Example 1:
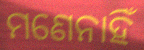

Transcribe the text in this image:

ମଣେନାହିଁ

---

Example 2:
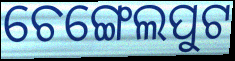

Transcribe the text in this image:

ଚେଙ୍ଗେଲପୁଟ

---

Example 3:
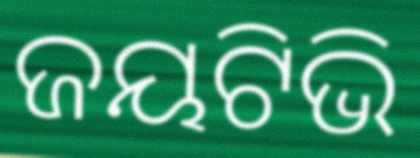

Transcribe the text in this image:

ଜୟଟିଭି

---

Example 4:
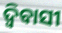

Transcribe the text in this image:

ଦ୍ବିବାସୀ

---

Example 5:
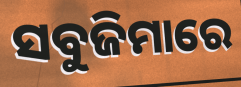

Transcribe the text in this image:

ସବୁଜିମାରେ